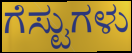
ಗೆಸ್ಟುಗಳು